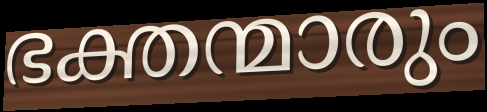
ഭക്തന്മാരും